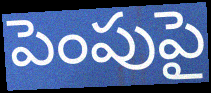
పెంపుపై